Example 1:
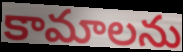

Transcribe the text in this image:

కామాలను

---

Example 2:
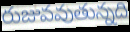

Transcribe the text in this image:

రుజువవుతున్నది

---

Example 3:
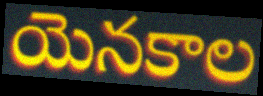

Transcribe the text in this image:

యెనకాల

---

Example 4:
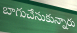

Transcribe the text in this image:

బాగుచేసుకున్నారు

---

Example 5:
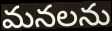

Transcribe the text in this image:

మనలను